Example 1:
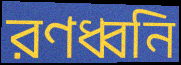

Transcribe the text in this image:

রণধ্বনি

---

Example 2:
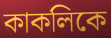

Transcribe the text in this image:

কাকলিকে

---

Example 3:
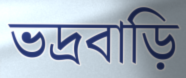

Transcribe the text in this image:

ভদ্রবাড়ি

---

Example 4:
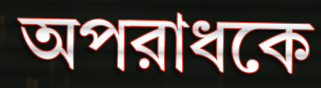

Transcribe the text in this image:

অপরাধকে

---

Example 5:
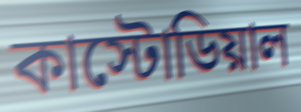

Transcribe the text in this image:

কাস্টোডিয়াল